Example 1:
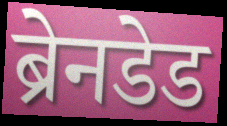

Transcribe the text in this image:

ब्रेनडेड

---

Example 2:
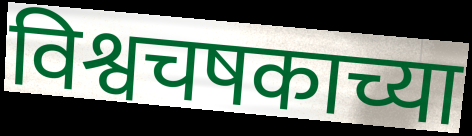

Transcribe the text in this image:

विश्वचषकाच्या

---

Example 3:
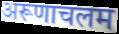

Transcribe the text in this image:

अरूणाचलम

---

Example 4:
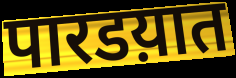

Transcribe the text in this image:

पारडय़ात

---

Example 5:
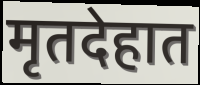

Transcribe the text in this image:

मृतदेहात